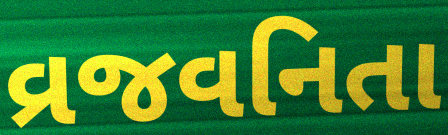
વ્રજવનિતા